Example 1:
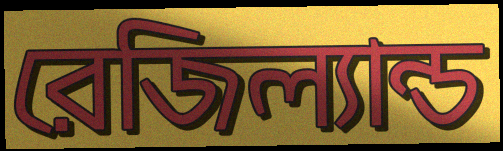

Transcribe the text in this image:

রেজিল্যান্ড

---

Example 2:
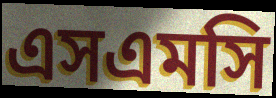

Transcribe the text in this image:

এসএমসি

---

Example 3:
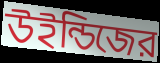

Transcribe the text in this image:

উইন্ডিজের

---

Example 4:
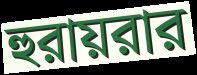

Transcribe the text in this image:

হুরায়রার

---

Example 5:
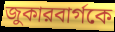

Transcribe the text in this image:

জুকারবার্গকে